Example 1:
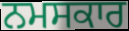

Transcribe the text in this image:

ਨਮਸਕਾਰ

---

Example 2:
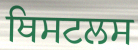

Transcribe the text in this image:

ਥਿਸਟਲਸ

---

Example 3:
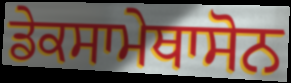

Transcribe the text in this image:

ਡੇਕਸਾਮੇਥਾਸੋਨ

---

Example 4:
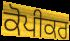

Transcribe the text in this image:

ਕੋਪੀਕਰ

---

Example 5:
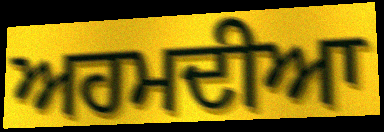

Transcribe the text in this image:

ਅਹਮਦੀਆ